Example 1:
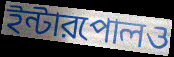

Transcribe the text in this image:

ইন্টারপোলও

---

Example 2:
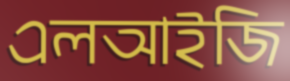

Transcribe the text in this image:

এলআইজি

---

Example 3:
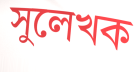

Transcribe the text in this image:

সুলেখক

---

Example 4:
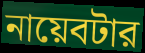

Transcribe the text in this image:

নায়েবটার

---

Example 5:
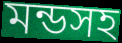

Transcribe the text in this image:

মন্ডসহ